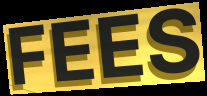
FEES